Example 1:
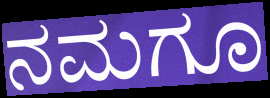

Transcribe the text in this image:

ನಮಗೂ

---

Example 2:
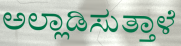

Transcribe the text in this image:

ಅಲ್ಲಾಡಿಸುತ್ತಾಳೆ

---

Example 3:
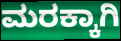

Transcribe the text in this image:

ಮರಕ್ಕಾಗಿ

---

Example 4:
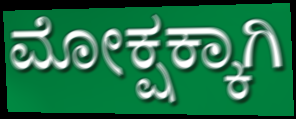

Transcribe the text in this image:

ಮೋಕ್ಷಕ್ಕಾಗಿ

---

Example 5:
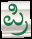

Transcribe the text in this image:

ಪ್ರಿ